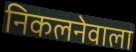
निकलनेवाला